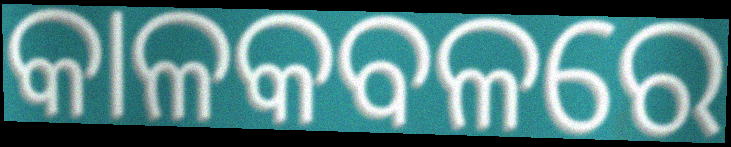
କାଳକବଳରେ